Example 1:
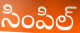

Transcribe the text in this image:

సింపిల్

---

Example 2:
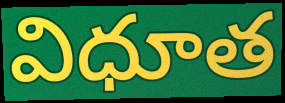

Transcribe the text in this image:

విధూత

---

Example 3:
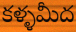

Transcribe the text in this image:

కళ్ళమీద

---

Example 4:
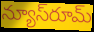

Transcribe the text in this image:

న్యూస్‌రూమ్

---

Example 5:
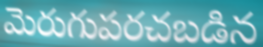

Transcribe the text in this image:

మెరుగుపరచబడిన